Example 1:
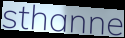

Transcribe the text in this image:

sthanne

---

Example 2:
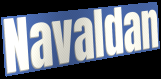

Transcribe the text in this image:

Navaldan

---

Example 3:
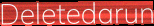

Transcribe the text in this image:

Deletedarun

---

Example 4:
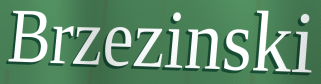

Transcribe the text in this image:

Brzezinski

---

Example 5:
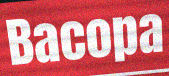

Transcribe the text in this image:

Bacopa